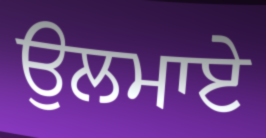
ਉਲਮਾਏ